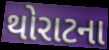
થોરાટના